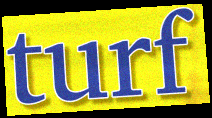
turf